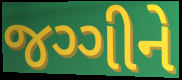
જગ્ગીને